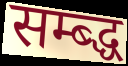
सम्ब्द्ध